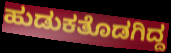
ಹುಡುಕತೊಡಗಿದ್ದ